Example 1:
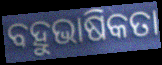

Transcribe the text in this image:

ବହୁଭାଷିକତା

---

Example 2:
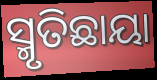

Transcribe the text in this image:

ସ୍ମୃତିଛାୟା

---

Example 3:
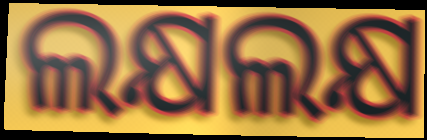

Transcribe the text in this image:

ଲକ୍ଷଲକ୍ଷ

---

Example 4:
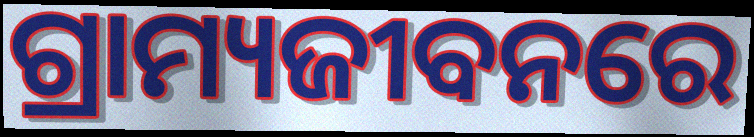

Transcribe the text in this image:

ଗ୍ରାମ୍ୟଜୀବନରେ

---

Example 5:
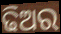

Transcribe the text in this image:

ଢିଅର